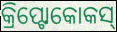
କ୍ରିପ୍ଟୋକୋକସ୍